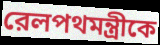
রেলপথমন্ত্রীকে